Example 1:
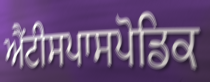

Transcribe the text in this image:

ਐਂਟੀਸਪਾਸਪੋਡਿਕ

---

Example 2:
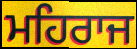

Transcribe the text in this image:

ਮਹਿਰਾਜ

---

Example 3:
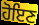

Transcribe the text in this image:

ਹੋਇਣ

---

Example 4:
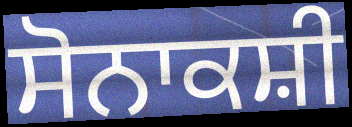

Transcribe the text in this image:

ਸੋਨਾਕਸ਼ੀ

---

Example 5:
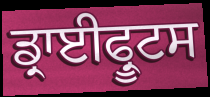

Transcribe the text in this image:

ਡ੍ਰਾਈਫ੍ਰੂਟਸ